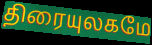
திரையுலகமே